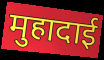
मुहादाई